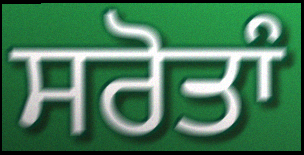
ਸਰੋਤਾੰ